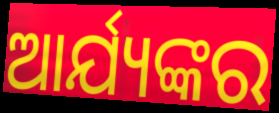
ଆର୍ଯ୍ୟଙ୍କର